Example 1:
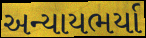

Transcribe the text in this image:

અન્યાયભર્યા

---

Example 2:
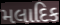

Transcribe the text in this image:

મલાદિક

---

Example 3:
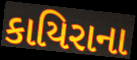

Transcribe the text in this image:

કાયિરાના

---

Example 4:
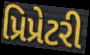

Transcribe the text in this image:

પ્રિપ્રેટરી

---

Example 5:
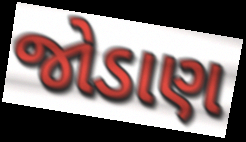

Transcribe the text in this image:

જોડાણ